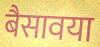
बैसावया